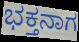
ಭಕ್ತನಾಗ